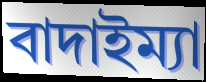
বাদাইম্যা